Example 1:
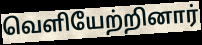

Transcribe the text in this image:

வெளியேற்றினார்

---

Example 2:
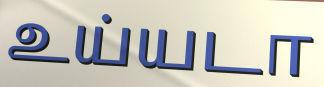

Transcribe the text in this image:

உய்யடா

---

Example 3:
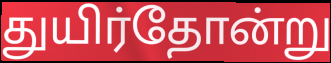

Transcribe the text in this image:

துயிர்தோன்று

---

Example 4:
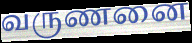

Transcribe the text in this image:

வருணனை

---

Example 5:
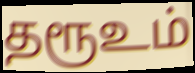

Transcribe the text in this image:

தரூஉம்